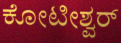
ಕೋಟೀಶ್ವರ್